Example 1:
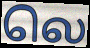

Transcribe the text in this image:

லெ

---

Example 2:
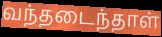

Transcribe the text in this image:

வந்தடைந்தாள்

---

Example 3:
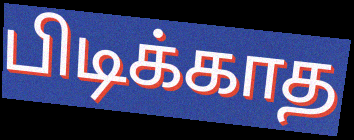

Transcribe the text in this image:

பிடிக்காத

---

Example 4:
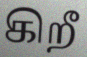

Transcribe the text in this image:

கிறீ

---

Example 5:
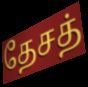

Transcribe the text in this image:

தேசத்